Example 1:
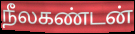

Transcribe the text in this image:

நீலகண்டன்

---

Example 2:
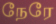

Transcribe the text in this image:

நேரே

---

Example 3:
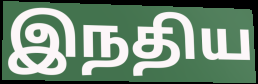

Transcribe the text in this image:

இநதிய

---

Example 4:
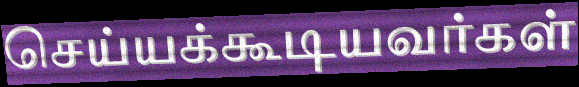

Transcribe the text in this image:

செய்யக்கூடியவர்கள்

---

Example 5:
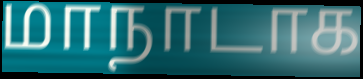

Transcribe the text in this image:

மாநாடாக